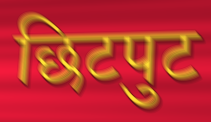
छिटपुट